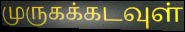
முருகக்கடவுள்